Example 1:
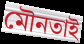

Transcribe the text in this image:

মৌনতাই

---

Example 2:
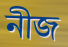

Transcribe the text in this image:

নীজ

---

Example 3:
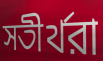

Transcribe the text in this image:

সতীর্থরা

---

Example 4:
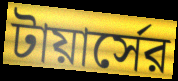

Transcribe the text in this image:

টায়ার্সের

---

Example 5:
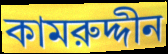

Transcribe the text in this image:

কামরুদ্দীন